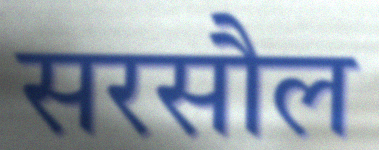
सरसौल